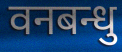
वनबन्धु